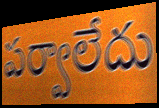
పర్వాలేదు